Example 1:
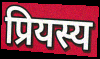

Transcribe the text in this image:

प्रियस्य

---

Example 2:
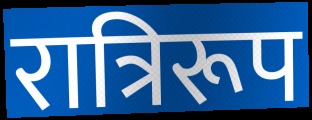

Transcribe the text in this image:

रात्रिरूप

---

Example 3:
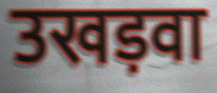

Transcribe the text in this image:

उखड़वा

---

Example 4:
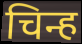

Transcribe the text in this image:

चिन्ह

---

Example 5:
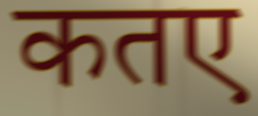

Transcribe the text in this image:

कतए